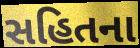
સહિતના